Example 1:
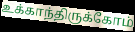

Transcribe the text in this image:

உக்காந்திருக்கோம்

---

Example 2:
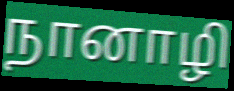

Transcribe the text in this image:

நானாழி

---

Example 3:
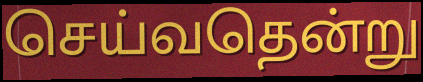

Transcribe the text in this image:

செய்வதென்று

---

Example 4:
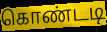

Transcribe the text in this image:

கொண்டடி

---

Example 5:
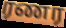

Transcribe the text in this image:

ரணர